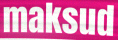
maksud